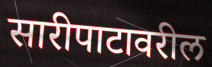
सारीपाटावरील